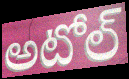
అటోల్